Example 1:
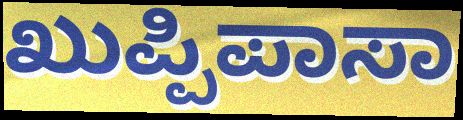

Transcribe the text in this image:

ಖುಪ್ಪಿಪಾಸಾ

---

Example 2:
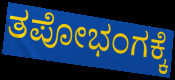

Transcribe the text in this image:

ತಪೋಭಂಗಕ್ಕೆ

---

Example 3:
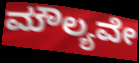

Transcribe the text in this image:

ಮೌಲ್ಯವೇ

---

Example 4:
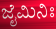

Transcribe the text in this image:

ಜೈಮಿನಿಃ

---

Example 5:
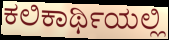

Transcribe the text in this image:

ಕಲಿಕಾರ್ಥಿಯಲ್ಲಿ